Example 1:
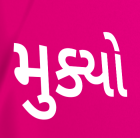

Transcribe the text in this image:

મુક્યો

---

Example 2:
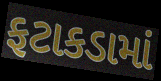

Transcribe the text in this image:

ફટાકડામાં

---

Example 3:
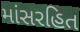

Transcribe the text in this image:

માંસરહિત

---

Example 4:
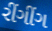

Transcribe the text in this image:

રીંગીંગ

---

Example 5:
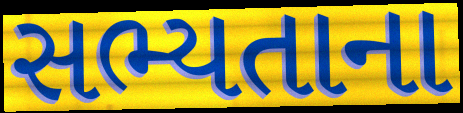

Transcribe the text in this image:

સભ્યતાના